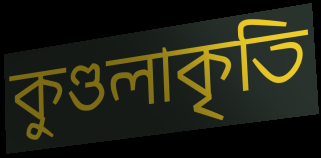
কুণ্ডলাকৃতি